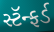
સ્ટૅન્ફર્ડ